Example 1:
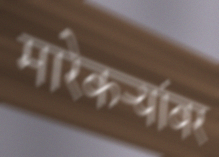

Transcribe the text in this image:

मारेकऱ्यांवर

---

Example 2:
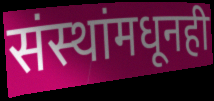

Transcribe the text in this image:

संस्थांमधूनही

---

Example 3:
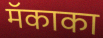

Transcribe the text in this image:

मॅकाका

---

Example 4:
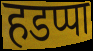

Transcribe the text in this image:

हडप्पा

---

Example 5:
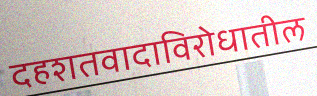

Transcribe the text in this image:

दहशतवादाविरोधातील